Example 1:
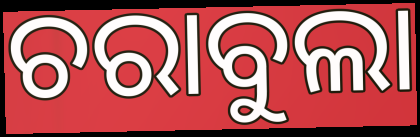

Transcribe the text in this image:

ଚରାବୁଲା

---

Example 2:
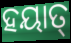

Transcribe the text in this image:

ହୟାତ୍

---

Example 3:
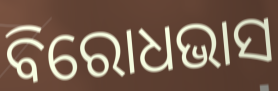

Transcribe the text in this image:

ବିରୋଧଭାସ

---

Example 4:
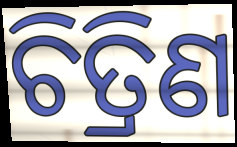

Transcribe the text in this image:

ଚିତ୍ରିଣ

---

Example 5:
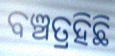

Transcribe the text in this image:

ବଞ୍ଚତ୍ରହିଛି